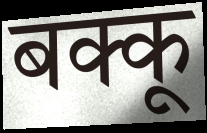
बक्कू